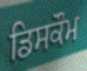
ਡਿਸਕੌਮ